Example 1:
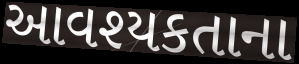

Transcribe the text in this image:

આવશ્યકતાના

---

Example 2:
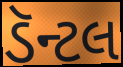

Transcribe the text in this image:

ડૅન્ટલ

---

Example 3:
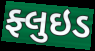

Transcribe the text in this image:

ફ્લુઇડ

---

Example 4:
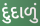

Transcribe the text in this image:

દુંદાળું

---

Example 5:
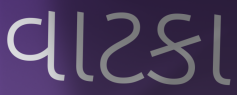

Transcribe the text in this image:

વાટકા